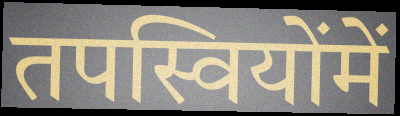
तपस्वियोंमें